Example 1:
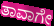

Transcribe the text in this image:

ತಾವಾಗೇ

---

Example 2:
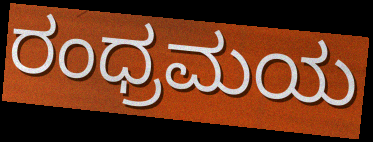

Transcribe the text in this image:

ರಂಧ್ರಮಯ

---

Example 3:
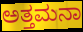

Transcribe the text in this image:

ಅತ್ತಮನಾ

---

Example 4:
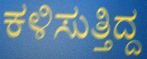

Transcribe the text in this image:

ಕಳಿಸುತ್ತಿದ್ದ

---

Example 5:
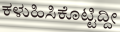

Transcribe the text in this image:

ಕಳುಹಿಸಿಕೊಟ್ಟಿದ್ದೀ